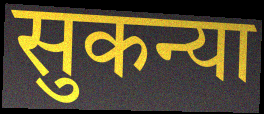
सुकन्या